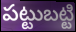
పట్టుబట్టి